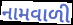
નામવાળી